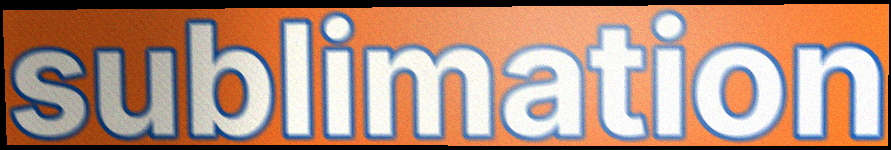
sublimation